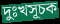
দুঃখসূচক